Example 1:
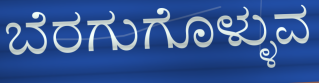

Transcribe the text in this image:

ಬೆರಗುಗೊಳ್ಳುವ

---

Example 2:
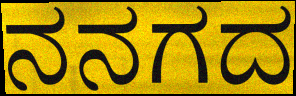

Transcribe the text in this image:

ನನಗದ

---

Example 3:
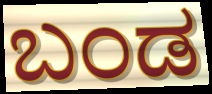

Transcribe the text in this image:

ಬಂಡ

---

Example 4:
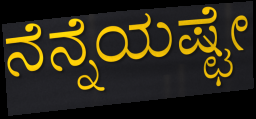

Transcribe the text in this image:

ನೆನ್ನೆಯಷ್ಟೇ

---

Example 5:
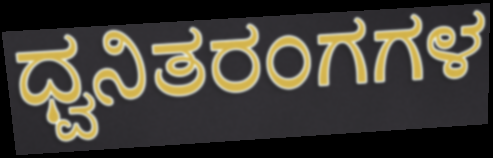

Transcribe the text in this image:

ಧ್ವನಿತರಂಗಗಳ